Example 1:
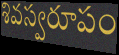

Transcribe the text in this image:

శివస్వరూపం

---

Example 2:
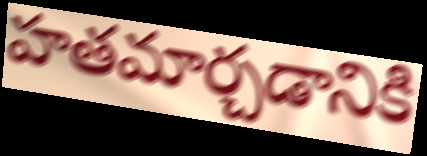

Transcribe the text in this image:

హతమార్చడానికి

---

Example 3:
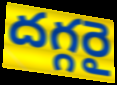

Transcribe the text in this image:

దగ్గరై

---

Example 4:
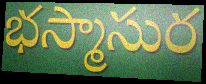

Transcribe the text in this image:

భస్మాసుర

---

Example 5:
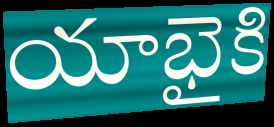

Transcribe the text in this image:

యాభైకి